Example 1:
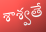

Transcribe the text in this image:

శాశ్వతే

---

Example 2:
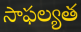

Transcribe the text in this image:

సాఫల్యత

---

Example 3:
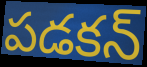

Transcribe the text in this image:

పడకన్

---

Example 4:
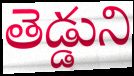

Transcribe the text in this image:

తెడ్డుని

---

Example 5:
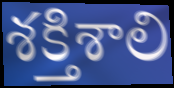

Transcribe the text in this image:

శక్తిశాలి